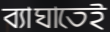
ব্যাঘাতেই